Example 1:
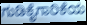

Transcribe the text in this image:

ಗುಡಿಕೈಗಾರಿಕೆಯ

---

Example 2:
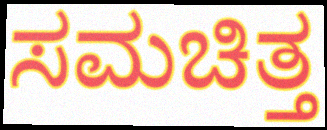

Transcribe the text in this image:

ಸಮಚಿತ್ತ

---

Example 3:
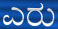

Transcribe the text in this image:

ಎರು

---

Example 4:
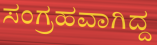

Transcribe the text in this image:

ಸಂಗ್ರಹವಾಗಿದ್ದ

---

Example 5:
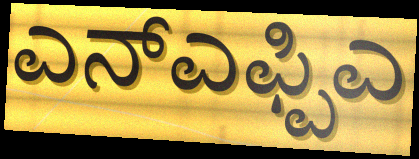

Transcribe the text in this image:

ಎನ್ಎಫ್ಪಿಎ